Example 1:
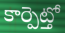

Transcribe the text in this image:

కార్పెట్తో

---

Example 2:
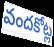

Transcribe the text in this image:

వందకోట్ల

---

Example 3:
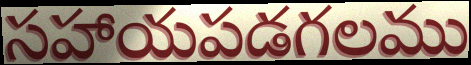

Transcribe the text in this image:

సహాయపడగలము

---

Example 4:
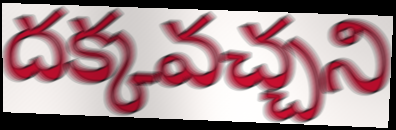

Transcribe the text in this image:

దక్కవచ్చని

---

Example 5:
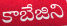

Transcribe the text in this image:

కాబేజిని